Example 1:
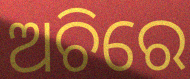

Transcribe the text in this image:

ଅଚିରେ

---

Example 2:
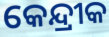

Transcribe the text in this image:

କେନ୍ଦ୍ରୀକ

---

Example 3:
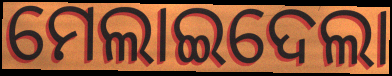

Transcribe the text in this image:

ମେଲାଇଦେଲା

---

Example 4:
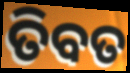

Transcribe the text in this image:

ତିବତ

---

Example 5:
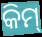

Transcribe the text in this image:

କିମ୍